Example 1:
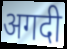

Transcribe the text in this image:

अगदी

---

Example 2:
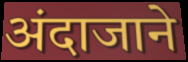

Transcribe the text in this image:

अंदाजाने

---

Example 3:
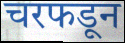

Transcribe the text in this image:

चरफडून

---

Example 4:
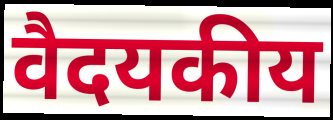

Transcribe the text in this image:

वैदयकीय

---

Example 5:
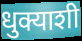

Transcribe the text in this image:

धुक्याशी